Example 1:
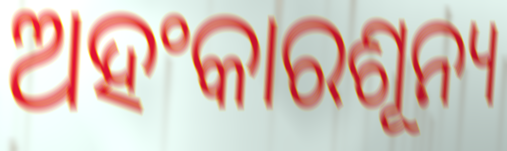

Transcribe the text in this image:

ଅହଂକାରଶୂନ୍ୟ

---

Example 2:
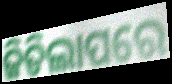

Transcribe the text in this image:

ଜିତିଲାପରେ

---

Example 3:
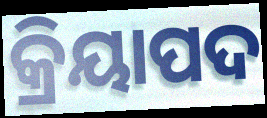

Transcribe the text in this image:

କ୍ରିୟାପଦ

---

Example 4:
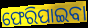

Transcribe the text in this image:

ଫେରିପାଇବା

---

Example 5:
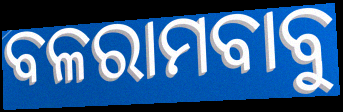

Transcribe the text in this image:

ବଳରାମବାବୁ